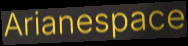
Arianespace